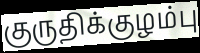
குருதிக்குழம்பு